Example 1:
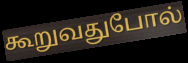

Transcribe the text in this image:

கூறுவதுபோல்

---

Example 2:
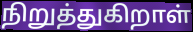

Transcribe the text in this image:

நிறுத்துகிறாள்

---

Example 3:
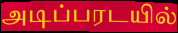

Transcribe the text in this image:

அடிப்பரடயில்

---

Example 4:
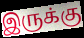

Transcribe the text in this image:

இருக்கு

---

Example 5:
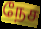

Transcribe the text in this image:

நேச